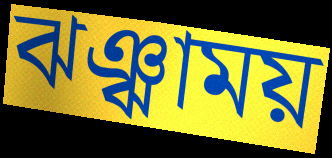
ঝঞ্ঝাময়